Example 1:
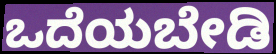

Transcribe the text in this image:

ಒದೆಯಬೇಡಿ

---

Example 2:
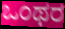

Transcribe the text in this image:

ಒಂಥರ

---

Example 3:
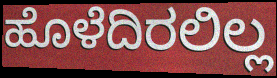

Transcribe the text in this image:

ಹೊಳೆದಿರಲಿಲ್ಲ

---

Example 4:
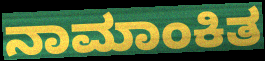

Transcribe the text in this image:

ನಾಮಾಂಕಿತ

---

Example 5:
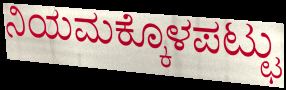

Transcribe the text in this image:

ನಿಯಮಕ್ಕೊಳಪಟ್ಟು